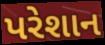
પરેશાન